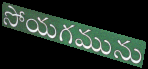
సోయగమును